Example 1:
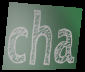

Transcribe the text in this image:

cha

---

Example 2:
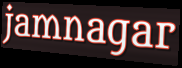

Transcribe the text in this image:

jamnagar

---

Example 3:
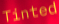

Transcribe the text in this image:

Tinted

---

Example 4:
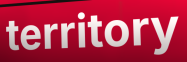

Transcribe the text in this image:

territory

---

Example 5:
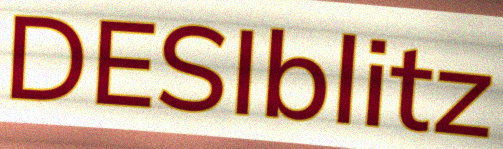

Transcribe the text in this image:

DESIblitz